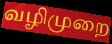
வழிமுறை